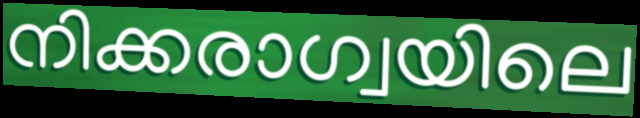
നിക്കരാഗ്വയിലെ